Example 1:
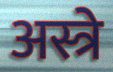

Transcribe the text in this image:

अस्त्रे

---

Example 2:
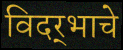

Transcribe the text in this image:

विदर्भाचे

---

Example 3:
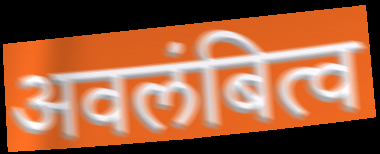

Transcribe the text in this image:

अवलंबित्व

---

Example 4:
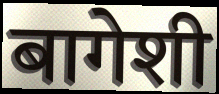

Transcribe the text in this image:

बागेशी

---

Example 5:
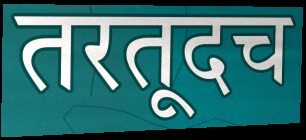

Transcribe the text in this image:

तरतूदच